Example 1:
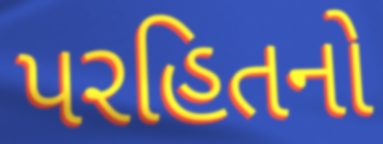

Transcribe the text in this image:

પરહિતનો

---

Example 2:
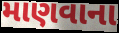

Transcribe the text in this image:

માણવાના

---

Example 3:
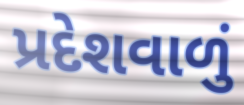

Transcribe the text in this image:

પ્રદેશવાળું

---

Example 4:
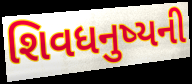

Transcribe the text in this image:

શિવધનુષ્યની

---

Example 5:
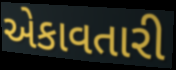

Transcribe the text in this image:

એકાવતારી